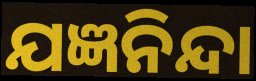
ଯଜ୍ଞନିନ୍ଦା